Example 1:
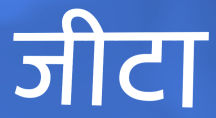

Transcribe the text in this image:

जीटा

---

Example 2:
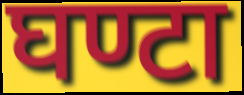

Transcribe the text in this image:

घण्टा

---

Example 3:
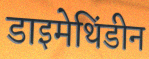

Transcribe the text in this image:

डाइमेथिंडीन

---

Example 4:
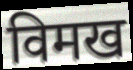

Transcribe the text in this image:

विमख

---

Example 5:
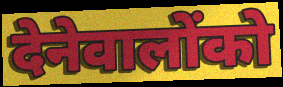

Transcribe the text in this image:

देनेवालोंको